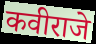
कवीराजे